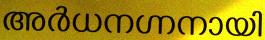
അർധനഗ്നനായി